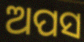
ଅପସ